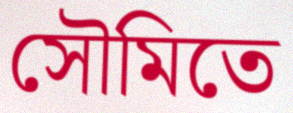
সৌমিতে